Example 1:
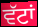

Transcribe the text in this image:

ਵੱਟਾਂ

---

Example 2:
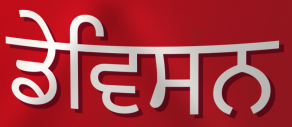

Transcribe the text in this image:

ਡੇਵਿਸਨ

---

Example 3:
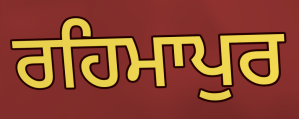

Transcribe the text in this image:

ਰਹਿਮਾਪੁਰ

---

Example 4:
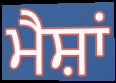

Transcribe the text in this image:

ਮੈਸ਼ਾਂ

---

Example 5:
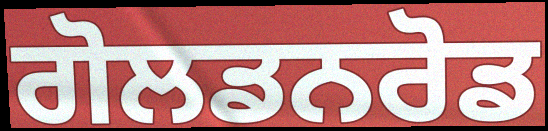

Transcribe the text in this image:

ਗੋਲਡਨਰੋਡ